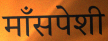
माँसपेशी